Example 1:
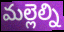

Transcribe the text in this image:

మల్లెల్ని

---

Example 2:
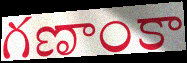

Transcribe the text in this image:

గణాంకా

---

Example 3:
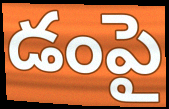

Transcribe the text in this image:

డంపై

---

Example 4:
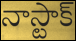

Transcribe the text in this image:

నాస్టాక్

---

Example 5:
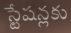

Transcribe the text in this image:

స్టేషన్లకు